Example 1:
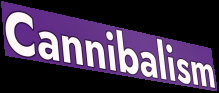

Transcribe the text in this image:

Cannibalism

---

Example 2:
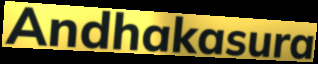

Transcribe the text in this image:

Andhakasura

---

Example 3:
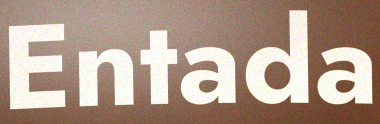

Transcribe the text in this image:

Entada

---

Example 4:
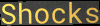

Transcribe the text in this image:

Shocks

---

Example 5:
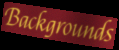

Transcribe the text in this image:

Backgrounds